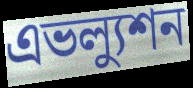
এভল্যুশন